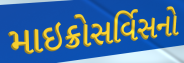
માઇક્રોસર્વિસનો